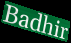
Badhir